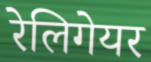
रेलिगेयर